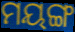
ମୟଙ୍ଗ